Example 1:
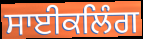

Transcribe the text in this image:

ਸਾਈਕਲਿੰਗ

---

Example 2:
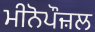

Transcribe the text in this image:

ਮੀਨੋਪੌਜ਼ਲ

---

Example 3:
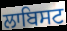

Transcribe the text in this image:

ਲਾਬਿਸਟ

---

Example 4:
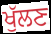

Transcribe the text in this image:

ਖੁੱਲਣ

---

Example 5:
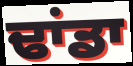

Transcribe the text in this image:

ਢਾਂਡਾ